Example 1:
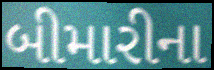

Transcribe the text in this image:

બીમારીના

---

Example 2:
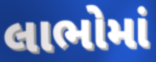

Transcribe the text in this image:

લાભોમાં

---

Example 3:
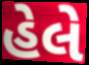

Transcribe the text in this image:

હેલે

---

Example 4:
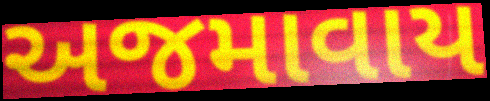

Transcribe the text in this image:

અજમાવાય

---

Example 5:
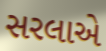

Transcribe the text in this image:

સરલાએ